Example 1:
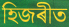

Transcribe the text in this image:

হিজৰীত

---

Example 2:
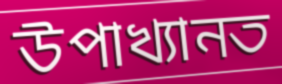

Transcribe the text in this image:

উপাখ্যানত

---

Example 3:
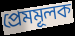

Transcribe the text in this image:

প্ৰেমমূলক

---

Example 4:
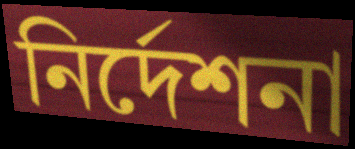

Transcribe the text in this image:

নিৰ্দেশনা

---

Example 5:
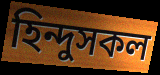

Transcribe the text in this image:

হিন্দুসকল